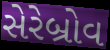
સેરેબ્રોવ